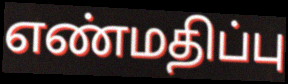
எண்மதிப்பு